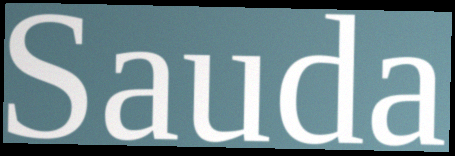
Sauda